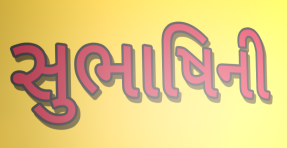
સુભાષિની